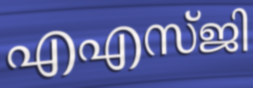
എഎസ്ജി